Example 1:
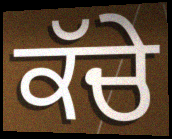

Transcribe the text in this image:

ਕੱਚੇ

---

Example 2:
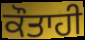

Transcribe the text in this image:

ਕੌਤਾਹੀ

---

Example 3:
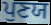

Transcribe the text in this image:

ਪੁਣਯ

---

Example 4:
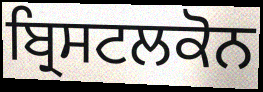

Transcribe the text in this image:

ਬ੍ਰਿਸਟਲਕੋਨ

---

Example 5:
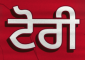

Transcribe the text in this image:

ਟੋਰੀ